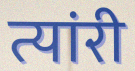
त्यांरी